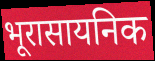
भूरासायनिक